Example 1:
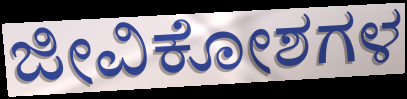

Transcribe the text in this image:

ಜೀವಿಕೋಶಗಳ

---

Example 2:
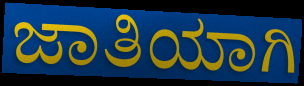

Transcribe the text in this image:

ಜಾತಿಯಾಗಿ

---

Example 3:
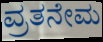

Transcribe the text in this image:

ವ್ರತನೇಮ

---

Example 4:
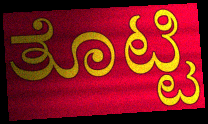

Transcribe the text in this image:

ತೊಟ್ಟಿ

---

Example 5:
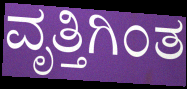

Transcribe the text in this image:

ವೃತ್ತಿಗಿಂತ